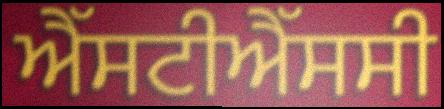
ਐੱਸਟੀਐੱਸਸੀ